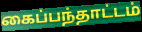
கைப்பந்தாட்டம்